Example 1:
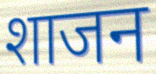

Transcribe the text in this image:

शाजन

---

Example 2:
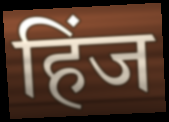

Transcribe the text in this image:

हिंज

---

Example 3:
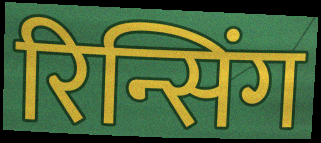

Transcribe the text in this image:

रिन्सिंग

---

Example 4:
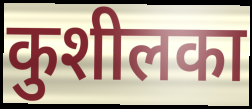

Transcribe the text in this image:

कुशीलका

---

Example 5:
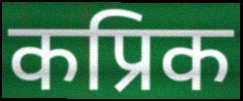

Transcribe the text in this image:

कप्रिक